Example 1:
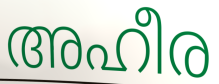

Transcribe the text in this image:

അഹീര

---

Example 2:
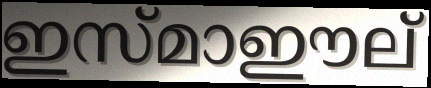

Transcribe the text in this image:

ഇസ്മാഈല്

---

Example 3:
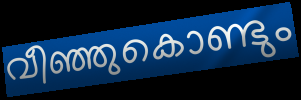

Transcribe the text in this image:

വീഞ്ഞുകൊണ്ടും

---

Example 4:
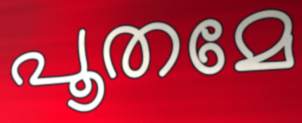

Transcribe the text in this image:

പൂതമേ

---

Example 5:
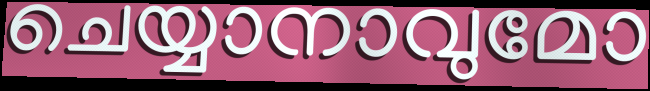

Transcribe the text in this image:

ചെയ്യാനാവുമോ